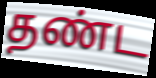
தண்ட